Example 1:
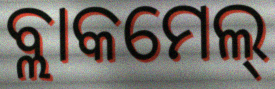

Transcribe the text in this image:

ବ୍ଲାକମେଲ୍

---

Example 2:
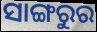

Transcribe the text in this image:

ସାଙ୍ଗରୁର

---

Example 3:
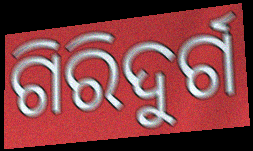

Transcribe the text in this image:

ଗିରିଦୁର୍ଗ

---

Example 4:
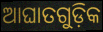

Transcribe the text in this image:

ଆଘାତଗୁଡ଼ିକ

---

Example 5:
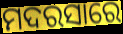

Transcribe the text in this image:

ମଦରସାରେ